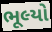
ભૂલ્યો